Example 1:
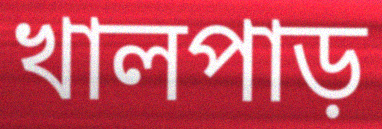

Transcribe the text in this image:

খালপাড়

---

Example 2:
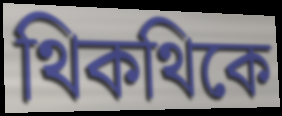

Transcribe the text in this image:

থিকথিকে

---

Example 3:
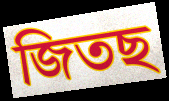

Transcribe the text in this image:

জিতছ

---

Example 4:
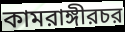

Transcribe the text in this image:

কামরাঙ্গীরচর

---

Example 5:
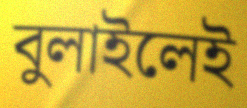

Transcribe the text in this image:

বুলাইলেই